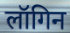
लॉगिन